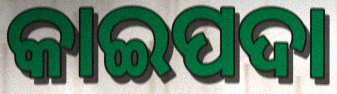
କାଇପଦା